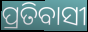
ପ୍ରତିବାସୀ